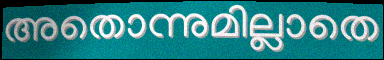
അതൊന്നുമില്ലാതെ